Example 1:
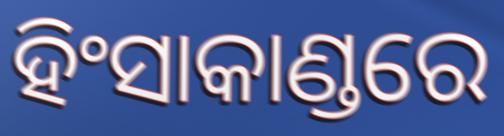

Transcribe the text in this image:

ହିଂସାକାଣ୍ଡରେ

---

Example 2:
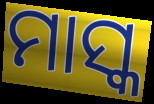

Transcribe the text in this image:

ମାସ୍କ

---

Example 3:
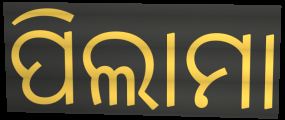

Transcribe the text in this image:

ପିଲାମା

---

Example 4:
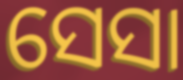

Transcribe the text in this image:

ସେସା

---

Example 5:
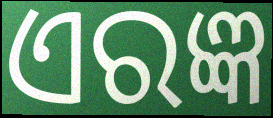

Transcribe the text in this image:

ଏରଜ୍ଞ